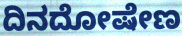
ದಿನದೋಷೇಣ